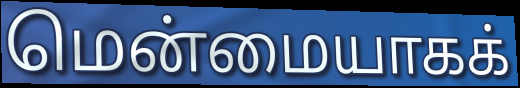
மென்மையாகக்